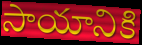
సాయానికి